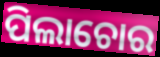
ପିଲାଚୋର